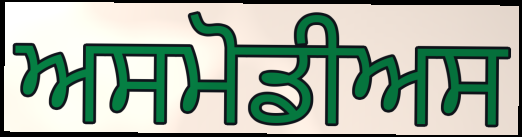
ਅਸਮੋਡੀਅਸ